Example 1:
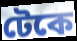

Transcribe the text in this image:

টেকে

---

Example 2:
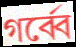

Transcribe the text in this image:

গর্ব্বে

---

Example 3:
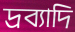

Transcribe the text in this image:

দ্রব্যাদি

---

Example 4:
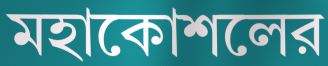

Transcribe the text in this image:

মহাকোশলের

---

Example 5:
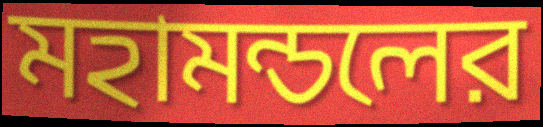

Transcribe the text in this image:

মহামন্ডলের